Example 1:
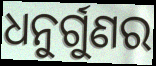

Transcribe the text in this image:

ଧନୁର୍ଗୁଣର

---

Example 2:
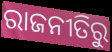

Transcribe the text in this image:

ରାଜନୀତିରୁ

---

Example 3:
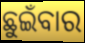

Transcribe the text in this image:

ଛୁଇଁବାର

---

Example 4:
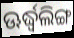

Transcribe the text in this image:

ଊର୍ଦ୍ଧ୍ୱଲିଙ୍ଗ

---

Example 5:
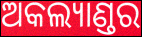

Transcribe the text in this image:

ଅକଲ୍ୟାଣ୍ଡର